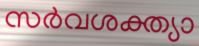
സർവശക്ത്യാ